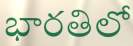
భారతిలో